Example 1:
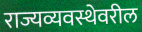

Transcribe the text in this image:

राज्यव्यवस्थेवरील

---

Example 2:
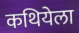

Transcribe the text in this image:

कथियेला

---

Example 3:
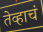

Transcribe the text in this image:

तेव्हाचं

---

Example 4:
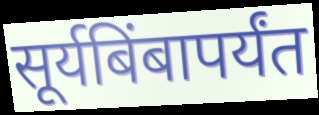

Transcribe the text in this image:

सूर्यबिंबापर्यंत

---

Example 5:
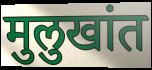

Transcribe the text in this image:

मुलुखांत